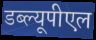
डब्ल्यूपीएल